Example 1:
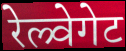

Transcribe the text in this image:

रेल्वेगेट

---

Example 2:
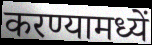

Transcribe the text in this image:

करण्यामध्यें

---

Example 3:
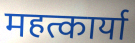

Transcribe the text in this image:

महत्कार्या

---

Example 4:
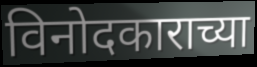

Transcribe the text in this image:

विनोदकाराच्या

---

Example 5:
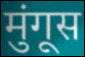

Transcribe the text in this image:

मुंगूस